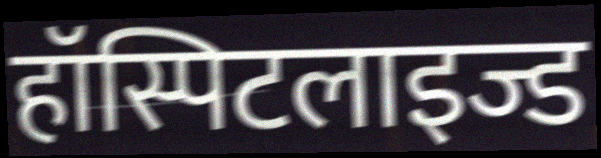
हॉस्पिटलाइज्ड